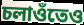
চলাওঁতেও